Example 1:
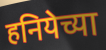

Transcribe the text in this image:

हनियेच्या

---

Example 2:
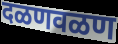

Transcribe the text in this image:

दळणवळण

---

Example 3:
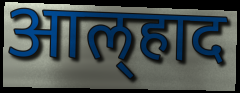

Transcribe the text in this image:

आल्हाद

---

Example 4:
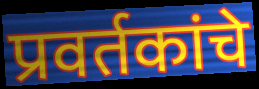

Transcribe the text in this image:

प्रवर्तकांचे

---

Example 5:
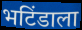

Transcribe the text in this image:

भटिंडाला